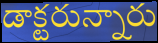
డాక్టరున్నారు